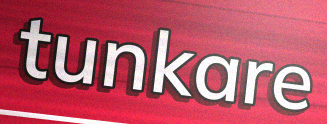
tunkare